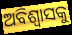
ଅବିଶ୍ୱାସକୁ